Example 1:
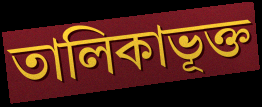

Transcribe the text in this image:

তালিকাভূক্ত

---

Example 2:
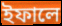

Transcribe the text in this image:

ইফালে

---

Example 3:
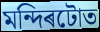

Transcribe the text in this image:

মন্দিৰটোত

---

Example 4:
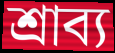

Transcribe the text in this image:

শ্ৰাব্য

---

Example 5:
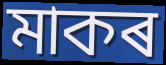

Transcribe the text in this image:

মাকৰ